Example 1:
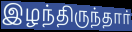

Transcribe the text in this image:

இழந்திருந்தார்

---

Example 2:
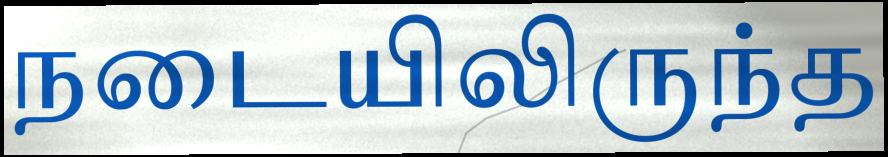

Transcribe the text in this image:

நடையிலிருந்த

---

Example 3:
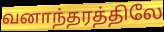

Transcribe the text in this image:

வனாந்தரத்திலே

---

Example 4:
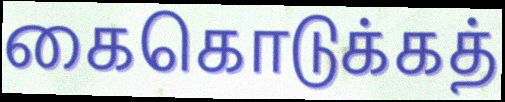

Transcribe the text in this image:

கைகொடுக்கத்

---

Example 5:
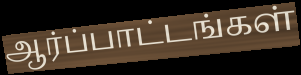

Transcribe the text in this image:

ஆர்ப்பாட்டங்கள்